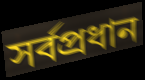
সৰ্বপ্ৰধান